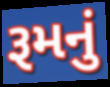
રૂમનું